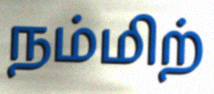
நம்மிற்